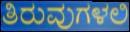
ತಿರುವುಗಳಲಿ